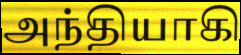
அந்தியாகி